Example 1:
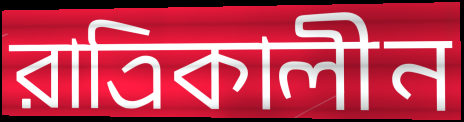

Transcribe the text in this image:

রাত্রিকালীন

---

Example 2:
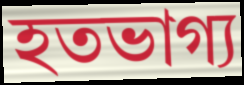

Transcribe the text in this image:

হতভাগ্য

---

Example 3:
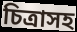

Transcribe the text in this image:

চিত্রাসহ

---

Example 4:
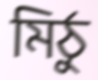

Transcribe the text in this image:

মিঠু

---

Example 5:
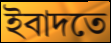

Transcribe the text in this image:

ইবাদতে